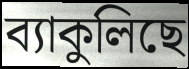
ব্যাকুলিছে